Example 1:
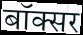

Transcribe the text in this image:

बॉक्सर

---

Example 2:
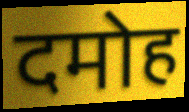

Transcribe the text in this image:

दमोह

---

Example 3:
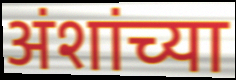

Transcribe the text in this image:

अंशांच्या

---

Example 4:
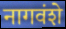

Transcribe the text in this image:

नागवंशे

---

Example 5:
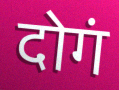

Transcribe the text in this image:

दोगं